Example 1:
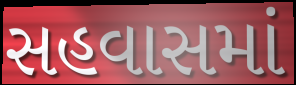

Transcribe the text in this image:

સહવાસમાં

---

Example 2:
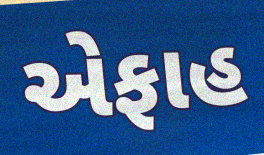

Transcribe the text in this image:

એફાહ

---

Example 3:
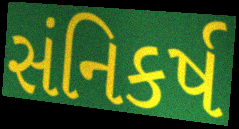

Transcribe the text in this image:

સંનિકર્ષ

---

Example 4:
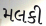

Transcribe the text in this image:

મલકી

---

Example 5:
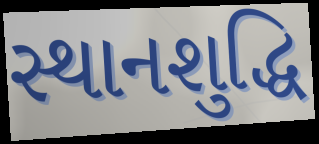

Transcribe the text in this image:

સ્થાનશુદ્ધિ